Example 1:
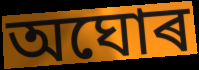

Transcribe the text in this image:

অঘোৰ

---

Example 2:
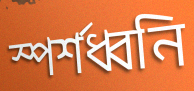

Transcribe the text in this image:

স্পৰ্শধ্বনি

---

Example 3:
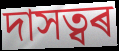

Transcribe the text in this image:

দাসত্বৰ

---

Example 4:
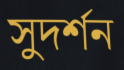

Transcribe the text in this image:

সুদৰ্শন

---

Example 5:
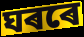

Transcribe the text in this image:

ঘৰৰে